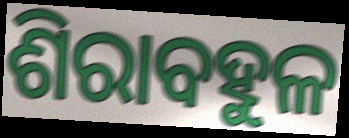
ଶିରାବହୁଳ